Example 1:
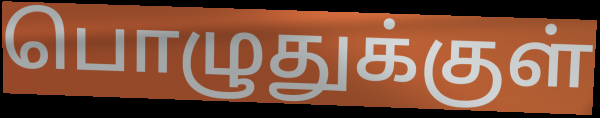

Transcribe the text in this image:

பொழுதுக்குள்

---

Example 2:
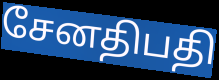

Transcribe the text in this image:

சேனதிபதி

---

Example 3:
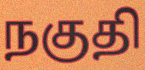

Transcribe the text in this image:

நகுதி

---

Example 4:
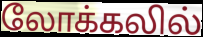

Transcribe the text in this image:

லோக்கலில்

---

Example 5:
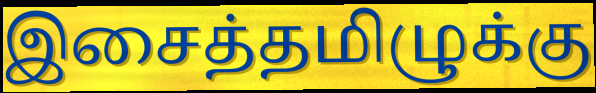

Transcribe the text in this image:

இசைத்தமிழுக்கு